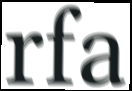
rfa